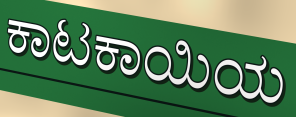
ಕಾಟಕಾಯಿಯ